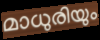
മാധുരിയും